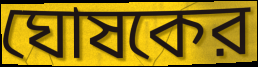
ঘোষকের